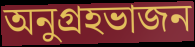
অনুগ্রহভাজন